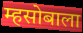
म्हसोबाला